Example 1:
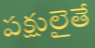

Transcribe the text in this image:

పక్షులైతే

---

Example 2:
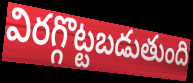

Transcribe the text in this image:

విరగ్గొట్టబడుతుంది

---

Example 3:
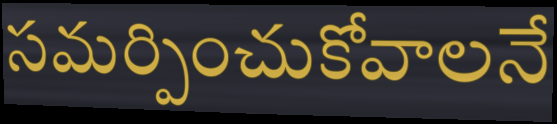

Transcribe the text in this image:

సమర్పించుకోవాలనే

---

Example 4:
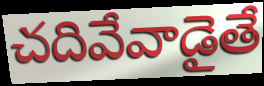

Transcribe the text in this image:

చదివేవాడైతే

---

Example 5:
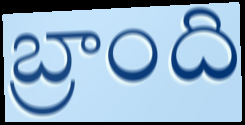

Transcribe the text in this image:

బ్రాంది